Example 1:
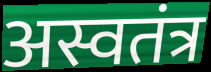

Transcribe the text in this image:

अस्वतंत्र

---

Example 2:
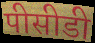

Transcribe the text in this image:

पीसीडी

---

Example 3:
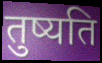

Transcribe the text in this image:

तुष्यति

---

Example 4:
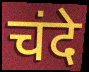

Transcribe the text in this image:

चंदे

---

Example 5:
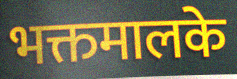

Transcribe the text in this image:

भक्तमालके